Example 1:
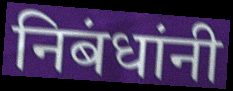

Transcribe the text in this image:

निबंधांनी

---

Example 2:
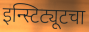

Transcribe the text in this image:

इन्स्टिट्यूटचा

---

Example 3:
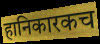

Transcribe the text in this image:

हानिकारकच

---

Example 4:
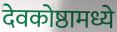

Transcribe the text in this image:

देवकोष्ठामध्ये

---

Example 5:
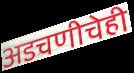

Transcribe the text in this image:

अडचणीचेही